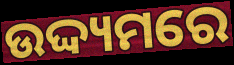
ଉଦ୍ଦ୍ୟମରେ